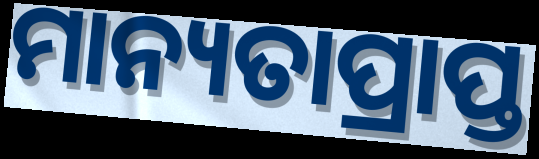
ମାନ୍ୟତାପ୍ରାପ୍ତ